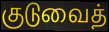
குடுவைத்